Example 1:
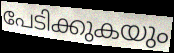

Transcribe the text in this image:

പേടിക്കുകയും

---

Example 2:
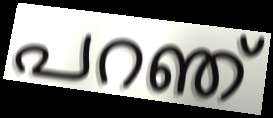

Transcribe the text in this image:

പറഞ്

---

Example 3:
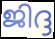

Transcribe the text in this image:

ജിദ്ദ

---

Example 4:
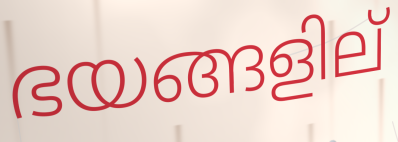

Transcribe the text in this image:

ഭയങ്ങളില്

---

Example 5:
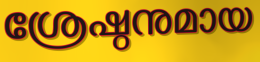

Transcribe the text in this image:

ശ്രേഷ്ഠനുമായ